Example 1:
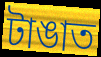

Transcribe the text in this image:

টাঙাত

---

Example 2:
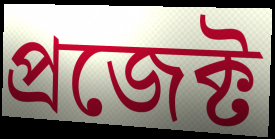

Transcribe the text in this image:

প্রজেক্ট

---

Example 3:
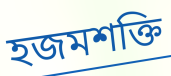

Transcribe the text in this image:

হজমশক্তি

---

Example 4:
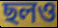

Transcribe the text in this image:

ছলও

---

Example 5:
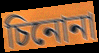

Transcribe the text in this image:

চিনোনা